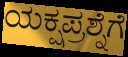
ಯಕ್ಷಪ್ರಶ್ನೆಗೆ